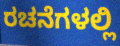
ರಚನೆಗಳಲ್ಲಿ